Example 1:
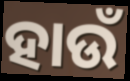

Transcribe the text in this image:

ହାଉଁ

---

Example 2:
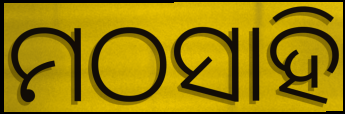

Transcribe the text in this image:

ମଠସାହି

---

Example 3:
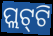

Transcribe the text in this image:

ପ୍ଲଟ୍‌ଟି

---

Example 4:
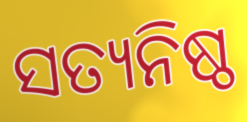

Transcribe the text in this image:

ସତ୍ୟନିଷ୍ଠ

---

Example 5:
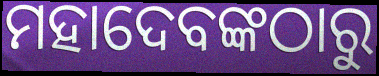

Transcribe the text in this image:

ମହାଦେବଙ୍କଠାରୁ